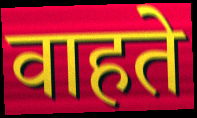
वाहते